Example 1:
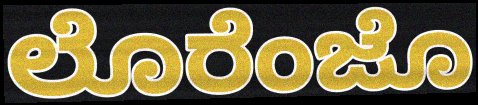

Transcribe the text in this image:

ಲೊರೆಂಜೊ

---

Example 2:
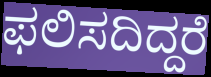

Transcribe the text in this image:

ಫಲಿಸದಿದ್ದರೆ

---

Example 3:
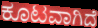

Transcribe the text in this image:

ಕೂಟವಾಗಿದೆ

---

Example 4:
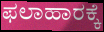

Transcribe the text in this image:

ಫಲಾಹಾರಕ್ಕೆ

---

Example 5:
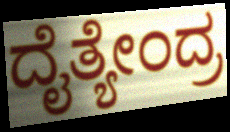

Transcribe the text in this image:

ದೈತ್ಯೇಂದ್ರ